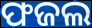
ଫଜଲ